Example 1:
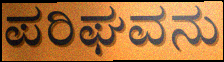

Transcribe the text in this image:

ಪರಿಘವನು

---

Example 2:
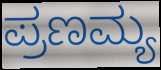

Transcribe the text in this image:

ಪ್ರಣಮ್ಯ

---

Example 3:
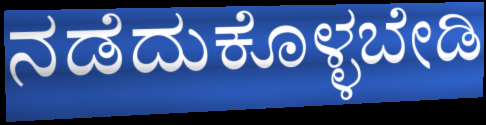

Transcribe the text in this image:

ನಡೆದುಕೊಳ್ಳಬೇಡಿ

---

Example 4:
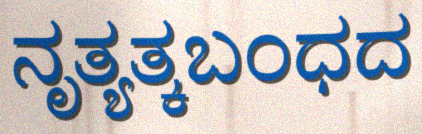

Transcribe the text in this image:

ನೃತ್ಯತ್ಕಬಂಧದ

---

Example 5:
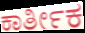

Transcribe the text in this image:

ಕಾರ್ತೀಕ